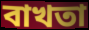
বাখতা